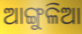
ଆଙ୍ଗୁଳିଆ